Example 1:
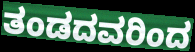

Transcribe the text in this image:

ತಂಡದವರಿಂದ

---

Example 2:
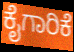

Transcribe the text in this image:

ಕೈಗಾರಿಕೆ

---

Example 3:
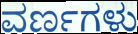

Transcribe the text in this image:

ವರ್ಣಗಳು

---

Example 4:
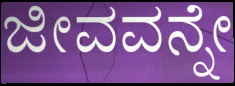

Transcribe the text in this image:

ಜೀವವನ್ನೇ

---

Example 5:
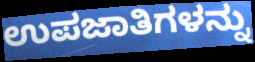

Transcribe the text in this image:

ಉಪಜಾತಿಗಳನ್ನು